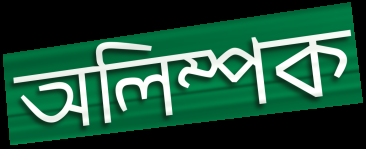
অলিম্পক